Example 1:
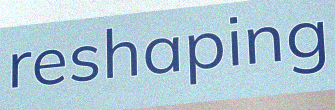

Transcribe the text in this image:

reshaping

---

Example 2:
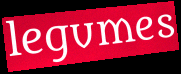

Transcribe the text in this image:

legumes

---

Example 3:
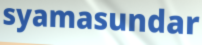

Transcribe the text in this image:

syamasundar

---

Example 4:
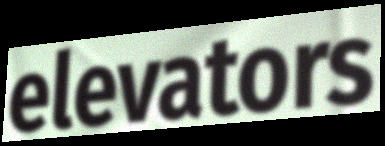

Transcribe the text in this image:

elevators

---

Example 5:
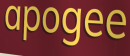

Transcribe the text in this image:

apogee